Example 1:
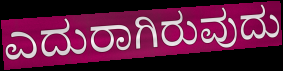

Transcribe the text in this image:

ಎದುರಾಗಿರುವುದು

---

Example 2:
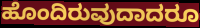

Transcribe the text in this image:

ಹೊಂದಿರುವುದಾದರೂ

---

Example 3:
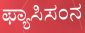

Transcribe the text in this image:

ಫ್ಯಾಸಿಸಂನ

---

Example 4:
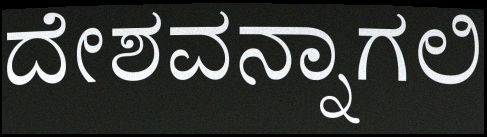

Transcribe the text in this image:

ದೇಶವನ್ನಾಗಲಿ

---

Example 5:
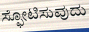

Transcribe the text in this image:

ಸ್ಫೋಟಿಸುವುದು